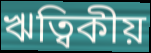
ঋত্বিকীয়